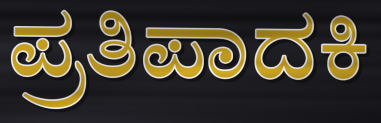
ಪ್ರತಿಪಾದಕಿ